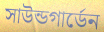
সাউন্ডগার্ডেন